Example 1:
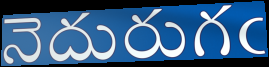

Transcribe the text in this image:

నెదురుగఁ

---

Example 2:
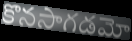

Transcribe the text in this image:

కొనసాగడమో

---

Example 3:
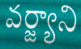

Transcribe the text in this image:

వర్జ్యాని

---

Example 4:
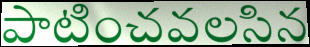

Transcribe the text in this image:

పాటించవలసిన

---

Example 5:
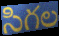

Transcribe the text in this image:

సిగల